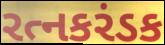
રત્નકરંડક